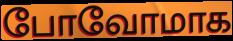
போவோமாக